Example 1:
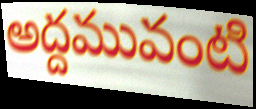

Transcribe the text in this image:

అద్దమువంటి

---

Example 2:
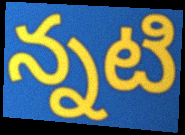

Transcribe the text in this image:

న్నటి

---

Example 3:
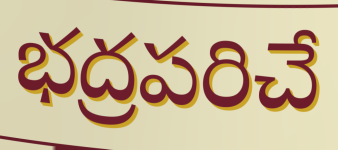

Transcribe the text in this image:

భద్రపరిచే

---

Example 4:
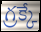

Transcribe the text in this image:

గ్రక్కే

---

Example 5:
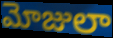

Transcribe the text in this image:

మోజులా